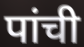
पांची